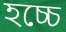
হচ্চে